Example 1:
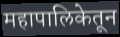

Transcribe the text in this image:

महापालिकेतून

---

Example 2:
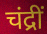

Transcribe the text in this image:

चंद्रीं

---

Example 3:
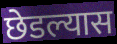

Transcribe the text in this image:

छेडल्यास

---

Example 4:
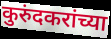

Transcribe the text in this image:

कुरुंदकरांच्या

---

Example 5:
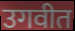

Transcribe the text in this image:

उगवीत